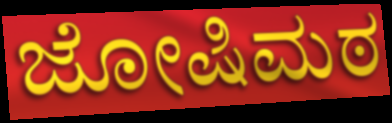
ಜೋಷಿಮಠ